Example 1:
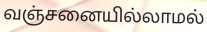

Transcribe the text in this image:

வஞ்சனையில்லாமல்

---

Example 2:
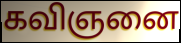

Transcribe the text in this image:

கவிஞனை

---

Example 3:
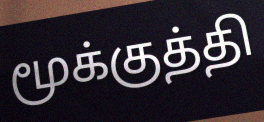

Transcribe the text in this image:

மூக்குத்தி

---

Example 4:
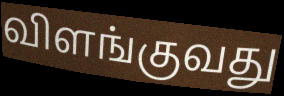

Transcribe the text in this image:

விளங்குவது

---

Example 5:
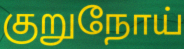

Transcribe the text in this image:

குறுநோய்